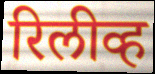
रिलीव्ह